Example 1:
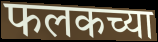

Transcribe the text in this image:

फलकच्या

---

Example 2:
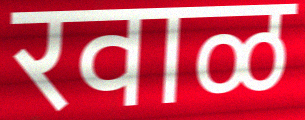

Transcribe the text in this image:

रवाळ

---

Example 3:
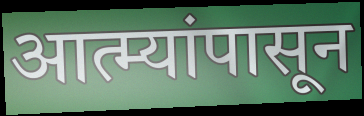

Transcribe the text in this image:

आत्म्यांपासून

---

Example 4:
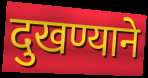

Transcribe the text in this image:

दुखण्याने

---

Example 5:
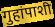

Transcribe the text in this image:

गुहांपाशी